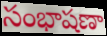
సంభాషణా